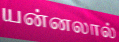
யன்னலால்